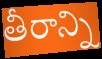
తీరాన్ని